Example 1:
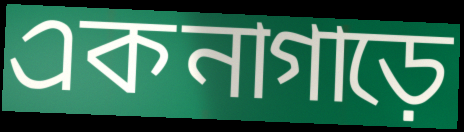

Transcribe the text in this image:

একনাগাড়ে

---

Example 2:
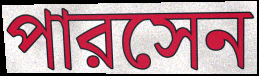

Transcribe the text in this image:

পারসেন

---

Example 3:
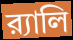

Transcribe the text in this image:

র‍্যালি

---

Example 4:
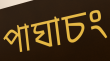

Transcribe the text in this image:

পাঘাচং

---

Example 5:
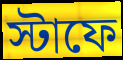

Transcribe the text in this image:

স্টাফে